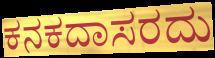
ಕನಕದಾಸರದು